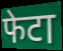
फेटा